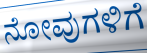
ನೋವುಗಳಿಗೆ